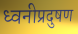
ध्वनीप्रदुषण